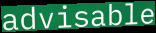
advisable